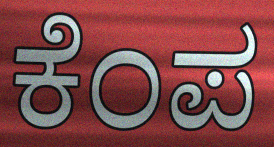
ಕೆಂಪ